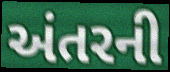
અંતરની